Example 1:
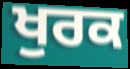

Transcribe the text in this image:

ਖੁਰਕ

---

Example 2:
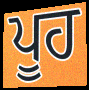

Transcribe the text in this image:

ਪੂਹ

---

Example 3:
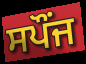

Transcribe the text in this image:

ਸਪੌਂਜ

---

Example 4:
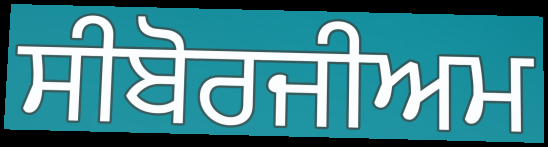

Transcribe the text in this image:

ਸੀਬੋਰਜੀਅਮ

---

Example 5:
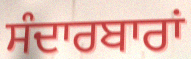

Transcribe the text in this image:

ਸੰਦਾਰਬਾਰਾਂ